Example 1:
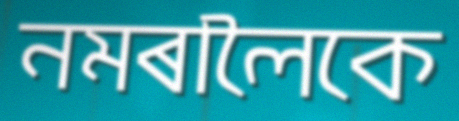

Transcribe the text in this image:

নমৰালৈকে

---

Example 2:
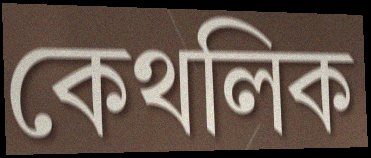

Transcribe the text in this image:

কেথলিক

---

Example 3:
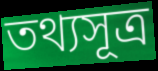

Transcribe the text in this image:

তথ্যসূত্ৰ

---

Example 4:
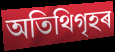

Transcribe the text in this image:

অতিথিগৃহৰ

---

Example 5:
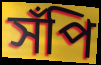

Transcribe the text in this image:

সঁপি